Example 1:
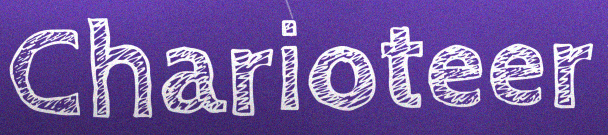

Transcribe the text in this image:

Charioteer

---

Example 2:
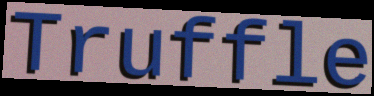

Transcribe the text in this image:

Truffle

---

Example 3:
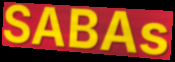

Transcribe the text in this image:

SABAs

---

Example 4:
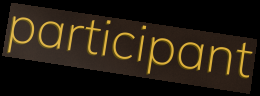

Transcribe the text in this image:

participant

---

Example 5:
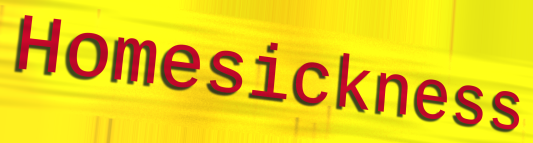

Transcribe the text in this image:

Homesickness